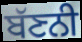
ਬੱਣਨੀ